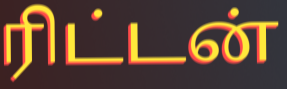
ரிட்டன்